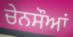
ਚੇਨਸੌਆਂ